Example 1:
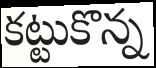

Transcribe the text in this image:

కట్టుకొన్న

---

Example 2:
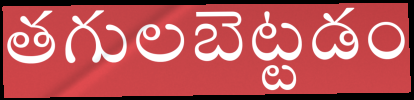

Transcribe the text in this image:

తగులబెట్టడం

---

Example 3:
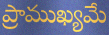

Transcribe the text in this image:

ప్రాముఖ్యమే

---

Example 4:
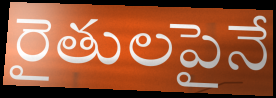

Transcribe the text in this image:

రైతులపైనే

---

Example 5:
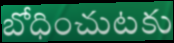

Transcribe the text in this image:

బోధించుటకు